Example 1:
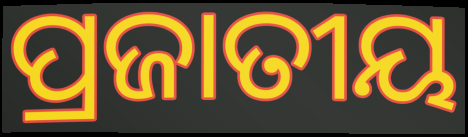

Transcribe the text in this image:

ପ୍ରଜାତୀୟ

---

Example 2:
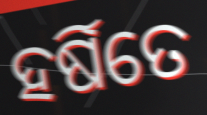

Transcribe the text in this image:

ହର୍ଷିତେ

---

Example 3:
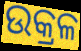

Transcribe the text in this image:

ଉକ୍ରଳ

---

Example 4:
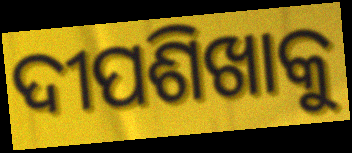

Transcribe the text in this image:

ଦୀପଶିଖାକୁ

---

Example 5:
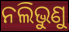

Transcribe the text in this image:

ନଲିଭୁଣୁ